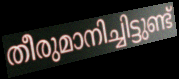
തീരുമാനിച്ചിട്ടുണ്ട്